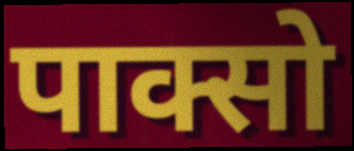
पाक्सो